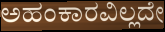
ಅಹಂಕಾರವಿಲ್ಲದೇ